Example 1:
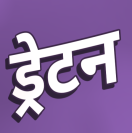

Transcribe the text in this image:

ड्रेटन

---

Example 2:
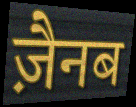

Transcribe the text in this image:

ज़ैनब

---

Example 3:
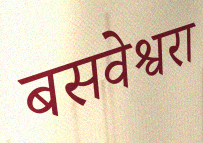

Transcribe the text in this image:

बसवेश्वरा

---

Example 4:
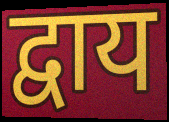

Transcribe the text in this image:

द्वाय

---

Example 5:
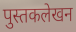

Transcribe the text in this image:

पुस्तकलेखन